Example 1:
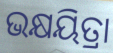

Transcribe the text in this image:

ଭକ୍ଷୟିତ୍ରା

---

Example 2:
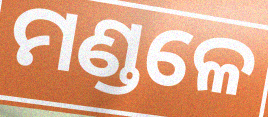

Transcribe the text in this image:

ମଣ୍ଡଳେ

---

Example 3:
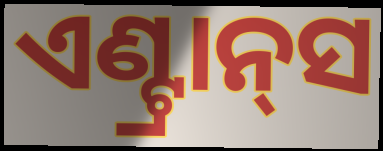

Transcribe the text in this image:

ଏଣ୍ଟ୍ରାନ୍‌ସ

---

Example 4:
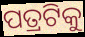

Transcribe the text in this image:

ପତ୍ରଟିକୁ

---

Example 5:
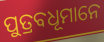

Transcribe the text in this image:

ପୁତ୍ରବଧୂମାନେ